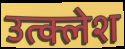
उत्क्लेश